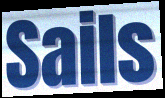
Sails